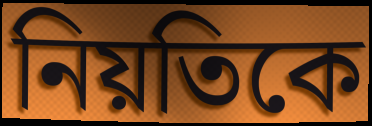
নিয়তিকে